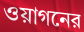
ওয়াগনের